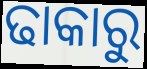
ଢାକାରୁ